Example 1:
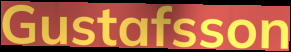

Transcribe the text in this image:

Gustafsson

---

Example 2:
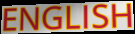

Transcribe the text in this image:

ENGLISH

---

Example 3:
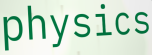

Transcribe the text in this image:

physics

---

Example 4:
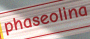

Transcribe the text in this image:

phaseolina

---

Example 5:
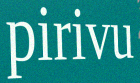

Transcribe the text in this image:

pirivu